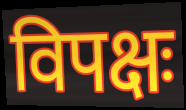
विपक्षः